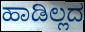
ಹಾಡಿಲ್ಲದ